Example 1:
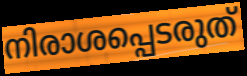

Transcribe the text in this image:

നിരാശപ്പെടരുത്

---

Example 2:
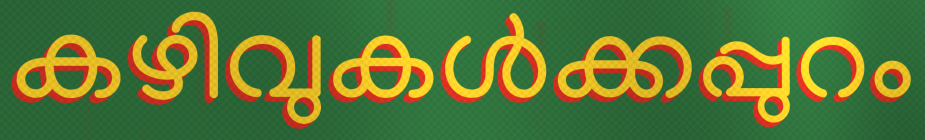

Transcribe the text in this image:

കഴിവുകൾക്കപ്പുറം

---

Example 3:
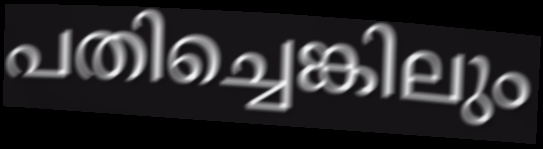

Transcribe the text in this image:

പതിച്ചെങ്കിലും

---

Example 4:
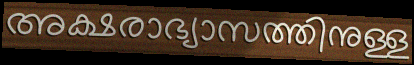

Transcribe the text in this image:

അക്ഷരാഭ്യാസത്തിനുള്ള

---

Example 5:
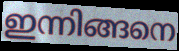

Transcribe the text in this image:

ഇന്നിങ്ങനെ